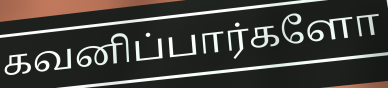
கவனிப்பார்களோ